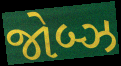
જોબ્ઝ